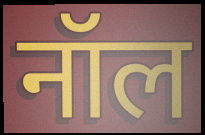
नॉल